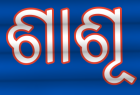
ଶାଶୂ